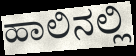
ಹಾಲಿನಲ್ಲಿ